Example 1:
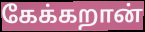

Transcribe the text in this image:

கேக்கறான்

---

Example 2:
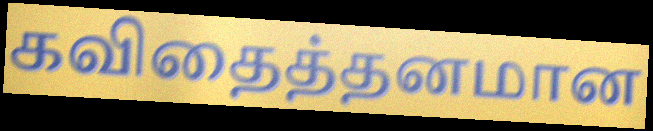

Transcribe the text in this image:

கவிதைத்தனமான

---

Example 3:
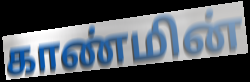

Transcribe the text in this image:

காண்மின்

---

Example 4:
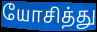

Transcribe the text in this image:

யோசித்து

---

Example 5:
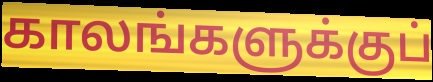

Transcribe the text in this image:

காலங்களுக்குப்